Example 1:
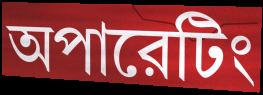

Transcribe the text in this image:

অপারেটিং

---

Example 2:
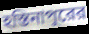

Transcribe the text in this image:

হস্তিনাপুরের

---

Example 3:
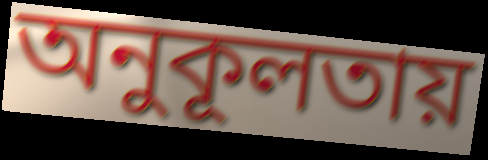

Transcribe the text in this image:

অনুকূলতায়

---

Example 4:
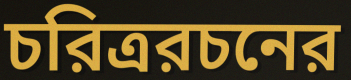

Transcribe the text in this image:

চরিত্ররচনের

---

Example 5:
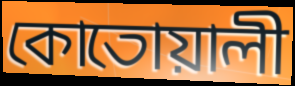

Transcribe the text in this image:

কোতোয়ালী